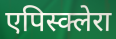
एपिस्क्लेरा